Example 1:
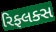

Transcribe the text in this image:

રિફ્લક્સ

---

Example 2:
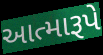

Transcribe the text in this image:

આત્મારૂપે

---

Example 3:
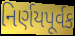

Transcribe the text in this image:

નિર્ણયપૂર્વક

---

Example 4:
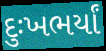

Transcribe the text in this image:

દુઃખભર્યાં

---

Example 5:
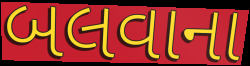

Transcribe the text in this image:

બલવાના